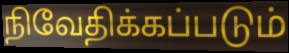
நிவேதிக்கப்படும்